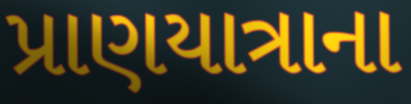
પ્રાણયાત્રાના